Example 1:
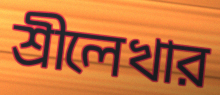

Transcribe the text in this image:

শ্রীলেখার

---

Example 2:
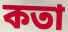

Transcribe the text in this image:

কতা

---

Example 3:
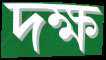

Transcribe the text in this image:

দক্ষ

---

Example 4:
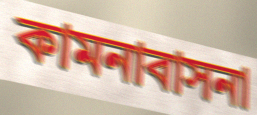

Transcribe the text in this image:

কামনাবাসনা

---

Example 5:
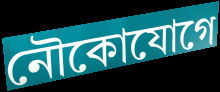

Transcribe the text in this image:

নৌকোযোগে